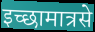
इच्छामात्रसे